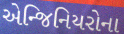
એન્જિનિયરોના